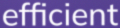
efficient